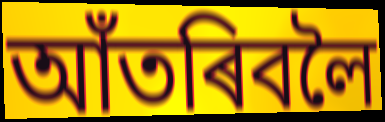
আঁতৰিবলৈ